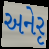
અનેરૃ